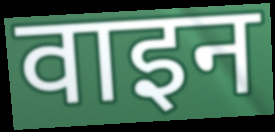
वाइन